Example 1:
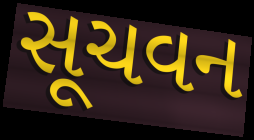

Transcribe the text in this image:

સૂચવન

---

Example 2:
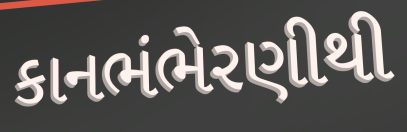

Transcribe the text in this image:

કાનભંભેરણીથી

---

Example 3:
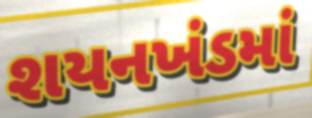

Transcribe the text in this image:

શયનખંડમાં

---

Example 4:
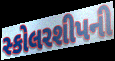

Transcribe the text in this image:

સ્કોલરશીપની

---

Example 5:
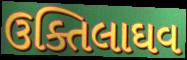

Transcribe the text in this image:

ઉક્તિલાઘવ